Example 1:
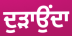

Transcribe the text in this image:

ਦੁੜਾਉਂਦਾ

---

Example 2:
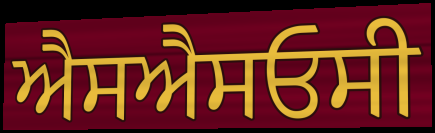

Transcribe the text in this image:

ਐਸਐਸਓਸੀ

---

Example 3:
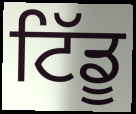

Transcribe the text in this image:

ਟਿੱਡੂ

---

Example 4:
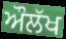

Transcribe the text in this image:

ਔਲੱਖ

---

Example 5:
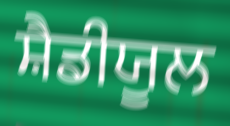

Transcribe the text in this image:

ਸ਼ੈਡੀਯੂਲ